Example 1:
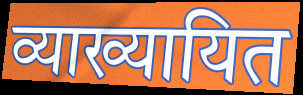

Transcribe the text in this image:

व्याख्यायित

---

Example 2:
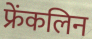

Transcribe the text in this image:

फ्रेंकलिन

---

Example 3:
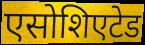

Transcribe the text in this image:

एसोशिएटेड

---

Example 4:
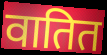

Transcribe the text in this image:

वातित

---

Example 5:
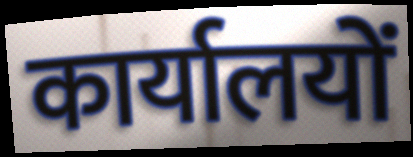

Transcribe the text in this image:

कार्यालयों